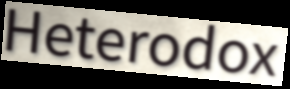
Heterodox